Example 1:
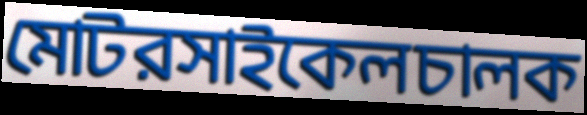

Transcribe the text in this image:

মোটরসাইকেলচালক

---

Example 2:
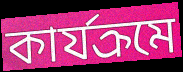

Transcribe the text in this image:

কার্যক্রমে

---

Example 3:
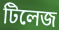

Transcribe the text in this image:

টিলেজ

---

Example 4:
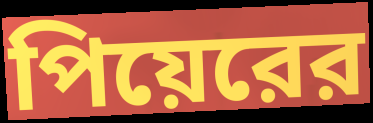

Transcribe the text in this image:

পিয়েরের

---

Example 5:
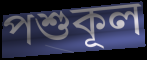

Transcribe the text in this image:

পশুকূল